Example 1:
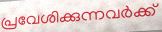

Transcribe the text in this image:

പ്രവേശിക്കുന്നവർക്ക്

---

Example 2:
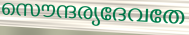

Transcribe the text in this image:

സൌന്ദര്യദേവതേ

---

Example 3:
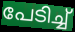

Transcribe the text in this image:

പേടിച്ച്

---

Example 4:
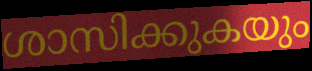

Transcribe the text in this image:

ശാസിക്കുകയും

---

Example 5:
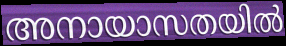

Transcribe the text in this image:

അനായാസതയിൽ